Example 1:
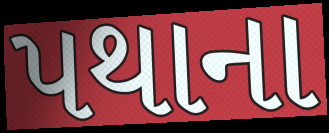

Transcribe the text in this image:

પથાના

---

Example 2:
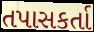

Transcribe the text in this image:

તપાસકર્તા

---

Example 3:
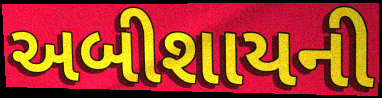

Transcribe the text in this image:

અબીશાયની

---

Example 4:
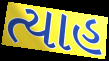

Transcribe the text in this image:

ત્યાહ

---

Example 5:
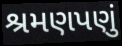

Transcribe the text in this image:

શ્રમણપણું